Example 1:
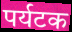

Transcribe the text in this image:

पर्यटक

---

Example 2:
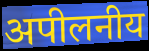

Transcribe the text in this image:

अपीलनीय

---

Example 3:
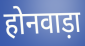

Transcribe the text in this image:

होनवाड़ा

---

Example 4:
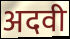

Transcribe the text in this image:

अदवी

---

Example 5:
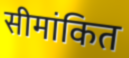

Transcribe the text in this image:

सीमांकित